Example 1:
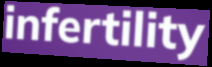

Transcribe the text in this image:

infertility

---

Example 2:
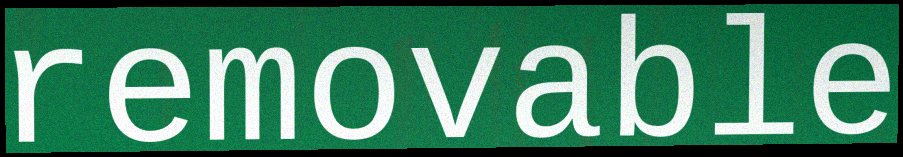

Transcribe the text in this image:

removable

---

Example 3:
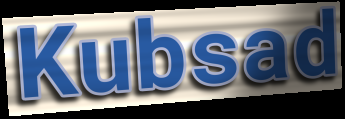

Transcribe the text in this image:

Kubsad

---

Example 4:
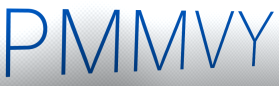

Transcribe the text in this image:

PMMVY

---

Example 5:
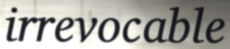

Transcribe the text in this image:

irrevocable